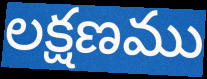
లక్షణము